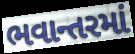
ભવાન્તરમાં